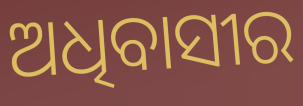
ଅଧିବାସୀର